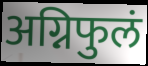
अग्निफुलं